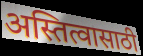
अस्तित्वासाठी